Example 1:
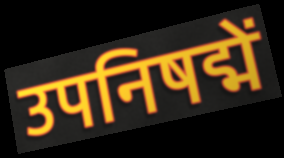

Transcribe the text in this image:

उपनिषद्में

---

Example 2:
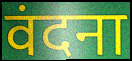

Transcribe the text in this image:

वंदना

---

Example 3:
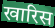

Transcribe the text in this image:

खारिस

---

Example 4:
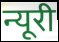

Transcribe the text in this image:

न्यूरी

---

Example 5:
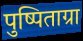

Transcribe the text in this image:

पुष्पिताग्रा